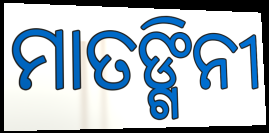
ମାତଙ୍ଗିନୀ